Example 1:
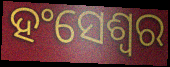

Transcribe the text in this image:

ହଂସେଶ୍ୱର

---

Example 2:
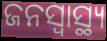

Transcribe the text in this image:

ଜନସ୍ୱାସ୍ଥ୍ୟ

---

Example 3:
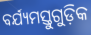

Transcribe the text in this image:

ବର୍ଯ୍ୟମସ୍ତୁଗୁଡ଼ିକ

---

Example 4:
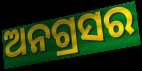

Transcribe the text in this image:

ଅନଗ୍ରସର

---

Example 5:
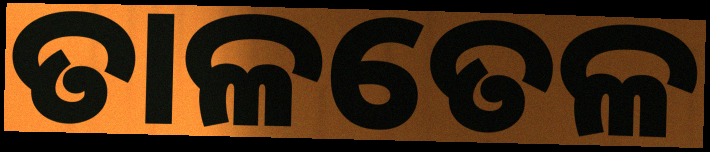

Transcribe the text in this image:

ତାଳତେଳ